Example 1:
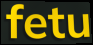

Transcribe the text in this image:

fetu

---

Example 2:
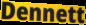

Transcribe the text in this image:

Dennett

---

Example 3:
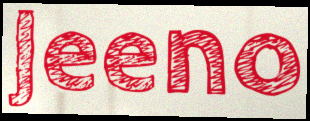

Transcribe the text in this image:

Jeeno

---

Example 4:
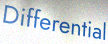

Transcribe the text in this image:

Differential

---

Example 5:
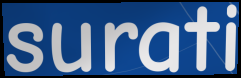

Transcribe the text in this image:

surati